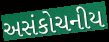
અસંકોચનીય